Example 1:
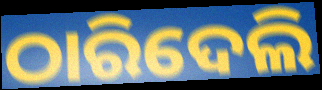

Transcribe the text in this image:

ଠାରିଦେଲି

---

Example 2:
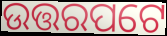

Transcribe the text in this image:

ଉତ୍ତରପଟେ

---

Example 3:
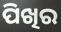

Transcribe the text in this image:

ପିଖିର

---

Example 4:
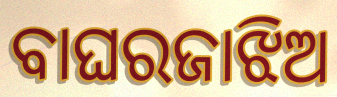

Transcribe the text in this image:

ବାଘରଜାଝିଅ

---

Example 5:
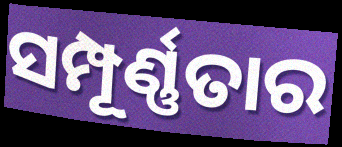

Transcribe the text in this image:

ସମ୍ପୂର୍ଣ୍ଣତାର